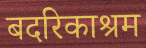
बदरिकाश्रम